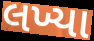
લખ્યા